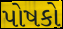
પોષકો